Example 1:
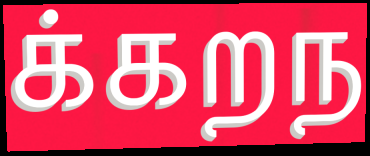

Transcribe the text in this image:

க்கறந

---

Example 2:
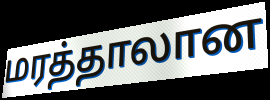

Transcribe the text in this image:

மரத்தாலான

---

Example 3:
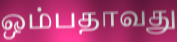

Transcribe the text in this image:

ஒம்பதாவது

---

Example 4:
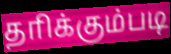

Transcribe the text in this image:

தரிக்கும்படி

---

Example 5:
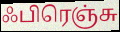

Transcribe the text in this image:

ஃபிரெஞ்சு